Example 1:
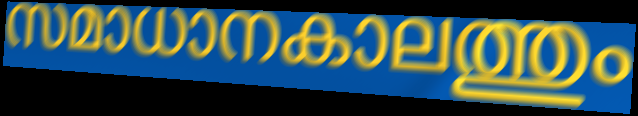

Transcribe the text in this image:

സമാധാനകാലത്തും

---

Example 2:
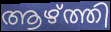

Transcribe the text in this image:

ആഴ്ത്തി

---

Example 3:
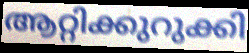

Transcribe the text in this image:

ആറ്റിക്കുറുക്കി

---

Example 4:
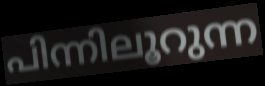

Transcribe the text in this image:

പിന്നിലൂറുന്ന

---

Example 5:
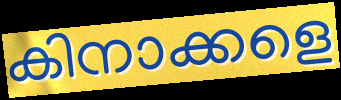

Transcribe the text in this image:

കിനാക്കളെ